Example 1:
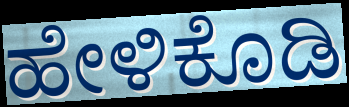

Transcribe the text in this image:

ಹೇಳಿಕೊಡಿ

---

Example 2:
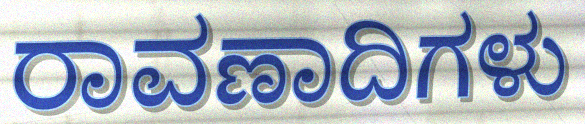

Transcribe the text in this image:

ರಾವಣಾದಿಗಳು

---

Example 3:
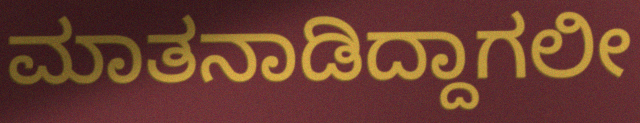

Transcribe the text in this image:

ಮಾತನಾಡಿದ್ದಾಗಲೀ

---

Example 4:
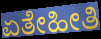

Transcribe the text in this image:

ಏತೇಹೀತಿ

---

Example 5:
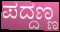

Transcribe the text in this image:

ಪದ್ದಣ್ಣ